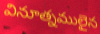
వినూత్నములైన